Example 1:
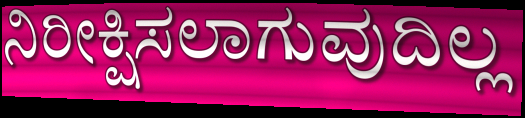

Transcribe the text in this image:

ನಿರೀಕ್ಷಿಸಲಾಗುವುದಿಲ್ಲ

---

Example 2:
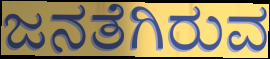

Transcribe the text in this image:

ಜನತೆಗಿರುವ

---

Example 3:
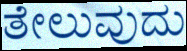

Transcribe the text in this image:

ತೇಲುವುದು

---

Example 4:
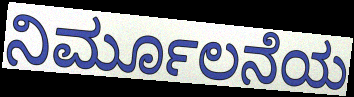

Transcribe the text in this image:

ನಿರ್ಮೂಲನೆಯ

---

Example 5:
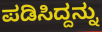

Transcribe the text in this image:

ಪಡಿಸಿದ್ದನ್ನು